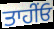
ਤਾਹੀਂਓ